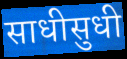
साधीसुधी